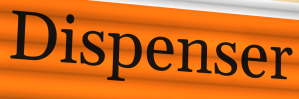
Dispenser